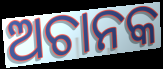
ଅଚାନକ